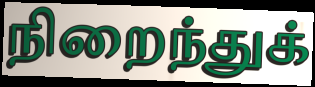
நிறைந்துக்